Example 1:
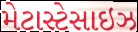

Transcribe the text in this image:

મેટાસ્ટેસાઇઝ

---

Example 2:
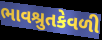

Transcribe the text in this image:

ભાવશ્રુતકેવળી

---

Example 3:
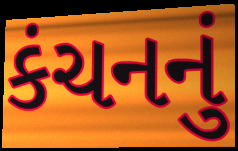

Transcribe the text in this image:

કંચનનું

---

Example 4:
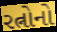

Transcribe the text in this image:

રત્નોનો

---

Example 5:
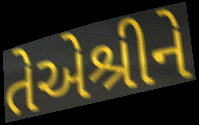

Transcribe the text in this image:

તેએશ્રીને